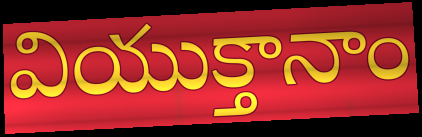
వియుక్తానాం